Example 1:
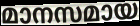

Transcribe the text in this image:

മാനസമായ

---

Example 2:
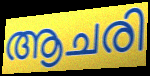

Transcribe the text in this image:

ആചരി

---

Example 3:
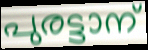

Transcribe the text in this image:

പുരട്ടാന്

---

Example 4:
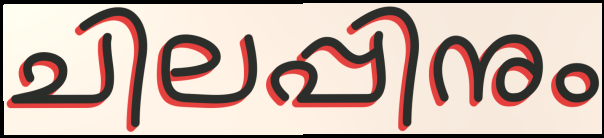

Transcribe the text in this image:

ചിലപ്പിനും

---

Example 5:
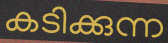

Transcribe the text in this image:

കടിക്കുന്ന